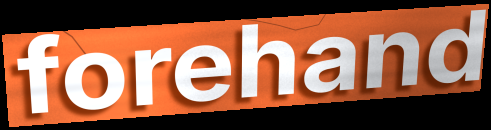
forehand